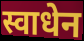
स्वाधेन